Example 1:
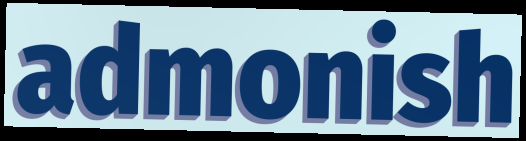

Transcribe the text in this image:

admonish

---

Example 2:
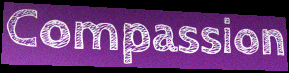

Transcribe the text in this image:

Compassion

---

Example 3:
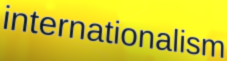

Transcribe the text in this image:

internationalism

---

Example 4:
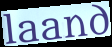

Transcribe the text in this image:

laand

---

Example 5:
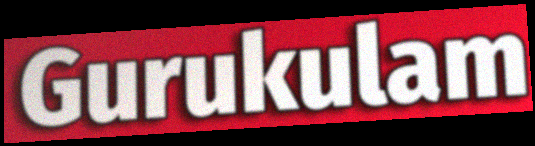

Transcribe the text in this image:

Gurukulam